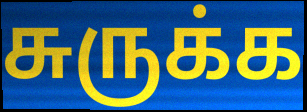
சுருக்க